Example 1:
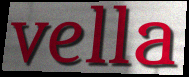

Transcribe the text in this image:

vella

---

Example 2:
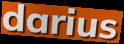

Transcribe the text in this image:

darius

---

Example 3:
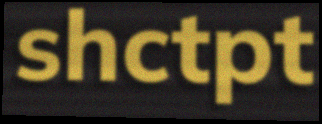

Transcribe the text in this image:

shctpt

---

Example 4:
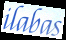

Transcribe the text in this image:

ilabas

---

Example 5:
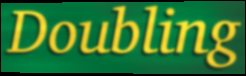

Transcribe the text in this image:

Doubling